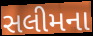
સલીમના